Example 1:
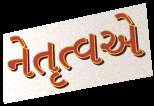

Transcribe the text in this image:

નેતૃત્વએ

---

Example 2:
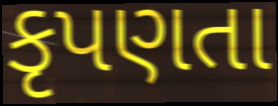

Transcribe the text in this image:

કૃપણતા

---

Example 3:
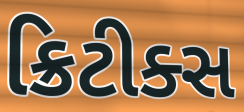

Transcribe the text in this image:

ક્રિટીક્સ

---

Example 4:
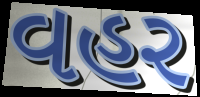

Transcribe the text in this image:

વહર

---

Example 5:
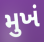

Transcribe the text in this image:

મુખં